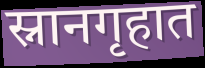
स्नानगृहात